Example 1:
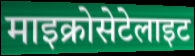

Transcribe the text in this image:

माइक्रोसेटेलाइट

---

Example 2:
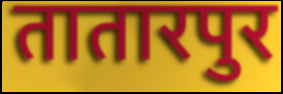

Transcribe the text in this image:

तातारपुर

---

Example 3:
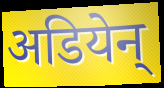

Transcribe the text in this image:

अडियेन्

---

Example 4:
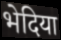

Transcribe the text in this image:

भेदिया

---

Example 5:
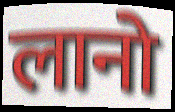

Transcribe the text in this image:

लानो